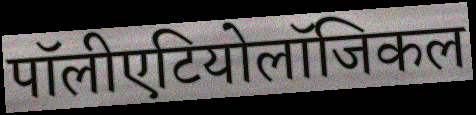
पॉलीएटियोलॉजिकल